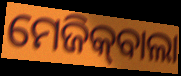
ମେଜିକ୍‍ବାଲା